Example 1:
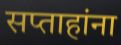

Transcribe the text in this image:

सप्ताहांना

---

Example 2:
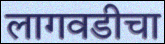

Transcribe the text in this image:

लागवडीचा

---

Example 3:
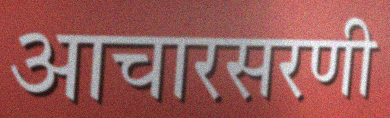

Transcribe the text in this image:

आचारसरणी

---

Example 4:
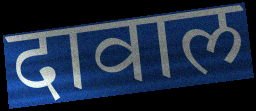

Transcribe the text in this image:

दावाल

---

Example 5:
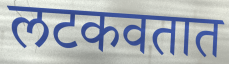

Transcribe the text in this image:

लटकवतात